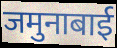
जमुनाबाई